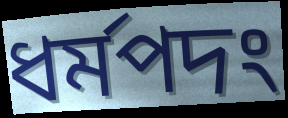
ধর্মপদং